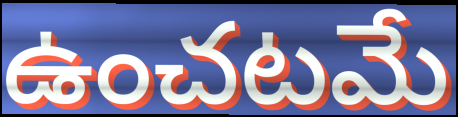
ఉంచటమే